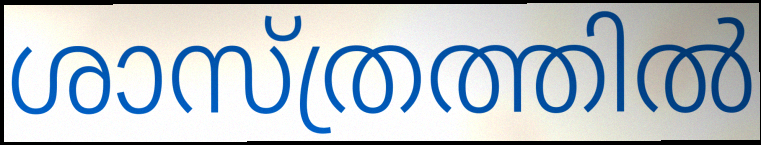
ശാസ്ത്രത്തിൽ